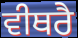
ਵੀਥਰੈ